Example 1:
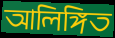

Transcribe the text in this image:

আলিঙ্গিত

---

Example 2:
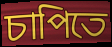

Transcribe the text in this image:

চাপিতে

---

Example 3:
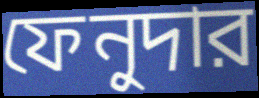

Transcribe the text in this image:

ফেনুদার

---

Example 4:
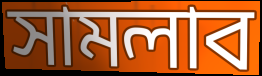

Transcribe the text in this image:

সামলাব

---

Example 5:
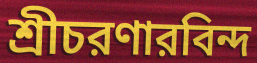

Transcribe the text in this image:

শ্রীচরণারবিন্দ